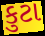
કુટા